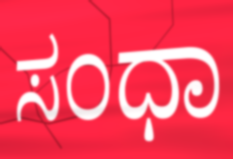
ಸಂಧಾ